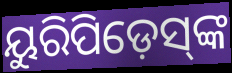
ୟୁରିପିଡ଼େସ୍‌ଙ୍କ